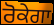
ਰੋਕੇਗਾ